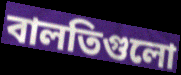
বালতিগুলো